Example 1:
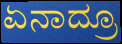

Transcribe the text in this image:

ಏನಾದ್ರೂ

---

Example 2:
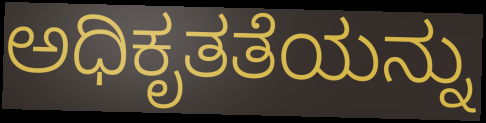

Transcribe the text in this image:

ಅಧಿಕೃತತೆಯನ್ನು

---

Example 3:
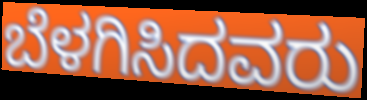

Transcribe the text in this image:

ಬೆಳಗಿಸಿದವರು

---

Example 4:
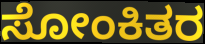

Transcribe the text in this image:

ಸೋಂಕಿತರ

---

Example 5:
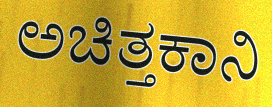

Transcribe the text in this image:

ಅಚಿತ್ತಕಾನಿ